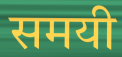
समयी